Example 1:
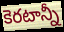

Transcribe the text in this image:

కెరటాన్నీ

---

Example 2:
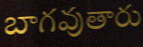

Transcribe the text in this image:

బాగవుతారు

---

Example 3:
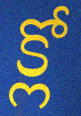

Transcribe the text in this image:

క్లో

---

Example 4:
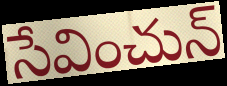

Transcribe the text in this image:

సేవించున్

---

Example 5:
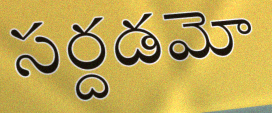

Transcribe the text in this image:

సర్దడమో